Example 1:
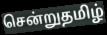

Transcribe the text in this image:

சென்றுதமிழ்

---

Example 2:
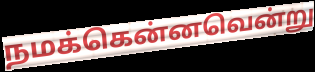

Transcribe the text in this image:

நமக்கென்னவென்று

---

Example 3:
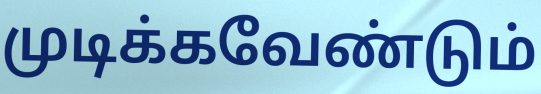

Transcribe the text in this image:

முடிக்கவேண்டும்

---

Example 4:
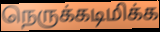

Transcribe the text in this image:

நெருக்கடிமிக்க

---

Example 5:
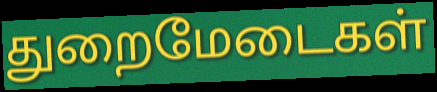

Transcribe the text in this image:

துறைமேடைகள்